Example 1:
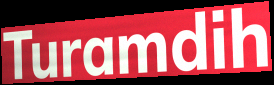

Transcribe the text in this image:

Turamdih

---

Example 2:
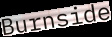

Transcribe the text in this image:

Burnside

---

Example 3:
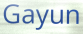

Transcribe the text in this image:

Gayun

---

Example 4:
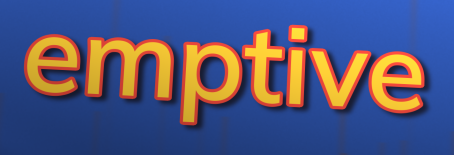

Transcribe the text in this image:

emptive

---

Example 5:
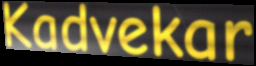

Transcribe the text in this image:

Kadvekar